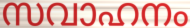
സവാഹനം